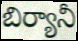
బిర్యానీ